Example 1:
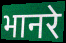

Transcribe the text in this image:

भानरे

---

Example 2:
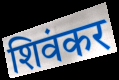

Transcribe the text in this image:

शिवंकर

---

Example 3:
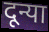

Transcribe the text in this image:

दून्या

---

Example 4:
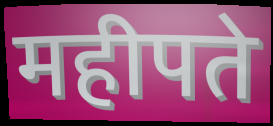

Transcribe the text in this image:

महीपते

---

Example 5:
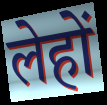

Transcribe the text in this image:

लेहों